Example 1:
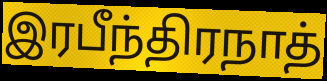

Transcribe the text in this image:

இரபீந்திரநாத்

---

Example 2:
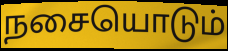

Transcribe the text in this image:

நசையொடும்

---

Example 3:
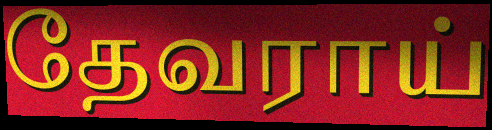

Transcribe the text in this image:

தேவராய்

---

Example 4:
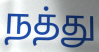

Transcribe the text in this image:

நத்து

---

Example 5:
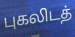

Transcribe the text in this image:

புகலிடத்